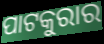
ପାଟକୁରାର